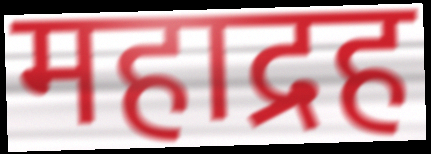
महाद्रह